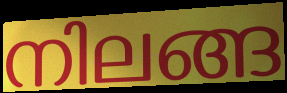
നിലങ്ങ